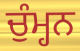
ਚੁੰਮ੍ਹਨ